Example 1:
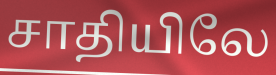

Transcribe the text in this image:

சாதியிலே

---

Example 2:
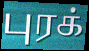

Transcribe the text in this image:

புரக்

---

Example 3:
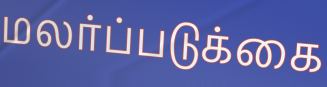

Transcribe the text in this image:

மலர்ப்படுக்கை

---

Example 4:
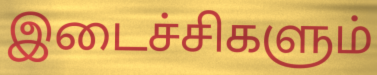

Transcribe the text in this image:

இடைச்சிகளும்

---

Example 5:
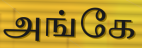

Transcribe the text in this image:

அங்கே